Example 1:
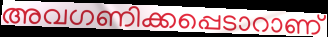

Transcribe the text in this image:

അവഗണിക്കപ്പെടാറാണ്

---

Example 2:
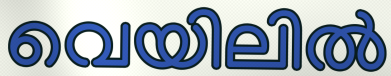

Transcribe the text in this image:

വെയിലിൽ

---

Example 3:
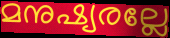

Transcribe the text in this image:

മനുഷ്യരല്ലേ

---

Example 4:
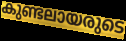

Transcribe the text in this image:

കുണ്ടലായരുടെ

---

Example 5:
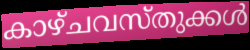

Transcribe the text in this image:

കാഴ്ചവസ്തുക്കൾ